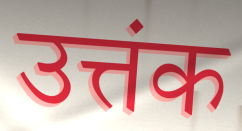
उत्तंक